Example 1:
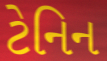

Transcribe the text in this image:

ટેનિન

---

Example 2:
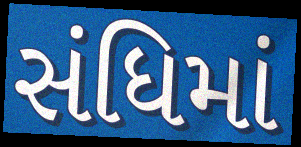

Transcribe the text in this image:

સંધિમાં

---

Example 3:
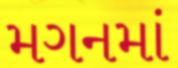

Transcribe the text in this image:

મગનમાં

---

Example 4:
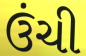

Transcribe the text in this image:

ઉંચી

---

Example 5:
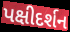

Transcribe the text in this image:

પક્ષીદર્શન